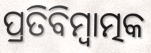
ପ୍ରତିବିମ୍ବାତ୍ମକ